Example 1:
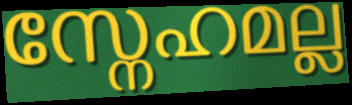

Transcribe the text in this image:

സ്നേഹമല്ല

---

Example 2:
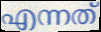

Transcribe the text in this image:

എന്നത്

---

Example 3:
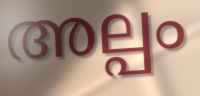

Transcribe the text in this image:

അല്പം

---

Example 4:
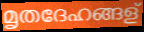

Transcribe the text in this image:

മൃതദേഹങ്ങള്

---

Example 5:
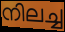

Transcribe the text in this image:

നിലച്ച